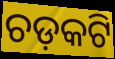
ଚଡ଼କଟି